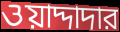
ওয়াদ্দাদার